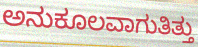
ಅನುಕೂಲವಾಗುತಿತ್ತು